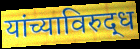
यांच्याविरुद्ध